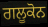
ਗਲੂਕੋਨ